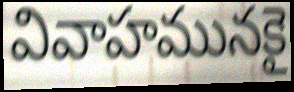
వివాహమునకై